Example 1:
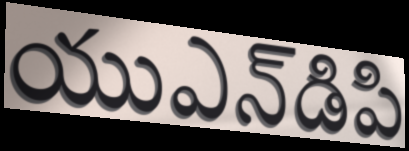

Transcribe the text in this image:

యుఎన్‌డిపి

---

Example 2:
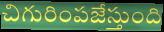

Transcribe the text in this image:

చిగురింపజేస్తుంది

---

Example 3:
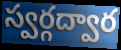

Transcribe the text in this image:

స్వర్గద్వార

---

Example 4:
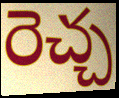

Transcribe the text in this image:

రెచ్చ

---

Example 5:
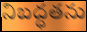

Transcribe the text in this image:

నిబద్ధతను